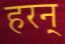
हरन्